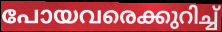
പോയവരെക്കുറിച്ച്